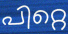
പിറ്റെ